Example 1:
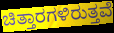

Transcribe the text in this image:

ಚಿತ್ತಾರಗಳಿರುತ್ತವೆ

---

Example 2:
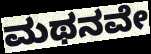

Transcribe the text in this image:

ಮಥನವೇ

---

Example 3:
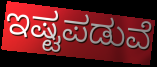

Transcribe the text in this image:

ಇಷ್ಟಪಡುವೆ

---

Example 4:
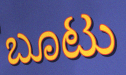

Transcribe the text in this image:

ಬೂಟು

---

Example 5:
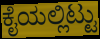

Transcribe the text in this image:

ಕೈಯಲ್ಲಿಟ್ಟು